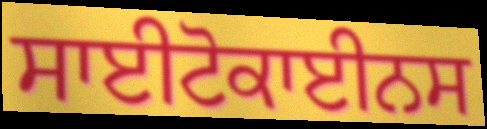
ਸਾਈਟੋਕਾਈਨਸ